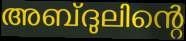
അബ്ദുലിന്റെ